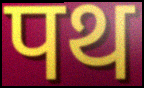
पथ